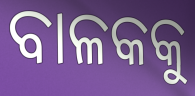
ବାଳକକୁ